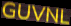
GUVNL